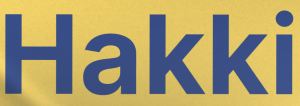
Hakki